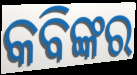
କବିଙ୍କର